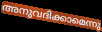
അനുവദിക്കാമെന്നു